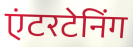
एंटरटेनिंग